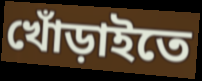
খোঁড়াইতে